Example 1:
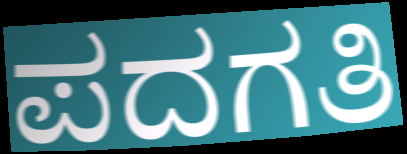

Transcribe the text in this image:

ಪದಗತಿ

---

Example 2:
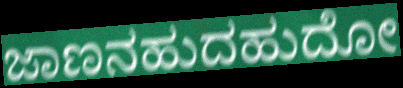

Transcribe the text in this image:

ಜಾಣನಹುದಹುದೋ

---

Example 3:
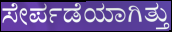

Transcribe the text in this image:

ಸೇರ್ಪಡೆಯಾಗಿತ್ತು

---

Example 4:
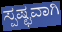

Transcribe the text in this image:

ಸ್ಪಷ್ಟವಾಗಿ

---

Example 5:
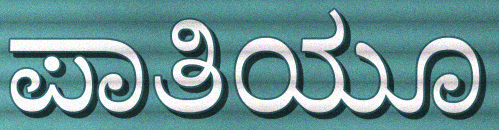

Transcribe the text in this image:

ಪಾತಿಯೂ